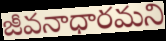
జీవనాధారమని